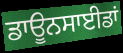
ਡਾਊਨਸਾਈਡਾਂ